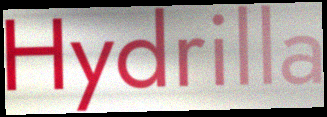
Hydrilla